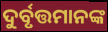
ଦୁର୍ବୃତ୍ତମାନଙ୍କ